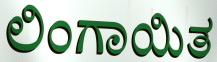
ಲಿಂಗಾಯಿತ